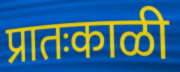
प्रातःकाळी